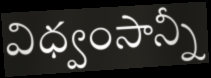
విధ్వంసాన్నీ